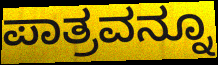
ಪಾತ್ರವನ್ನೂ